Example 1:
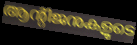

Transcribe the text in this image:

ആന്റിജനുകളുടെ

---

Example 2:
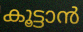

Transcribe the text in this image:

കൂട്ടാൻ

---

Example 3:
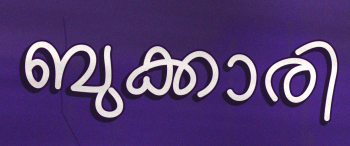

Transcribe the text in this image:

ബുക്കാരി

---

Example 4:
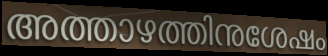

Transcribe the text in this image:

അത്താഴത്തിനുശേഷം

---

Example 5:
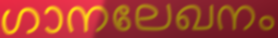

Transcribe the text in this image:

ഗാനലേഖനം